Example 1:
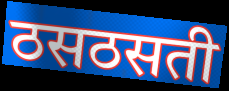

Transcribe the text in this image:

ठसठसती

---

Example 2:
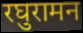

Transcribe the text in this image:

रघुरामन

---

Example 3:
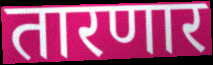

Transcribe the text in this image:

तारणार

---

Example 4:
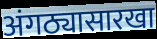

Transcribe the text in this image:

अंगठ्यासारखा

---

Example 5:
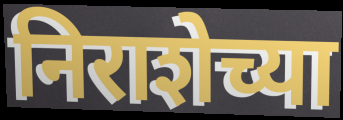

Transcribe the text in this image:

निराशेच्या